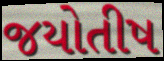
જયોતીષ